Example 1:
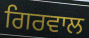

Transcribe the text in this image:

ਗਿਰਵਾਲ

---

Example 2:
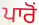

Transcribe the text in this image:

ਪਾਰੋਂ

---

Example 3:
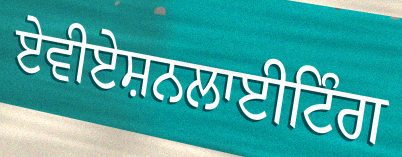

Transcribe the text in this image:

ਏਵੀਏਸ਼ਨਲਾਈਟਿੰਗ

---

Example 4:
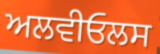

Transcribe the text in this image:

ਅਲਵੀਓਲਸ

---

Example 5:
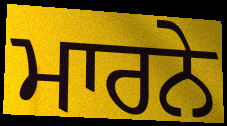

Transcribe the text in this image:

ਮਾਰਨੇ